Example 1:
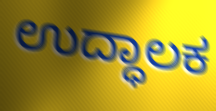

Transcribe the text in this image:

ಉದ್ಧಾಲಕ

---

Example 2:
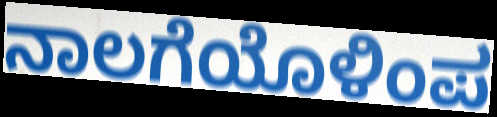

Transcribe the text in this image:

ನಾಲಗೆಯೊಳಿಂಪ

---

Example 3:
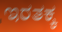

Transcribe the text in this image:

ಇರತಕ್ಕ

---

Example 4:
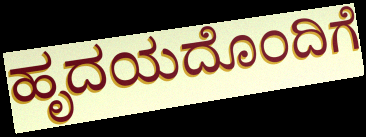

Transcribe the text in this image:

ಹೃದಯದೊಂದಿಗೆ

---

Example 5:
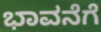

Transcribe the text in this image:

ಭಾವನೆಗೆ